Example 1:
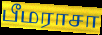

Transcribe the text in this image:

பீமராசா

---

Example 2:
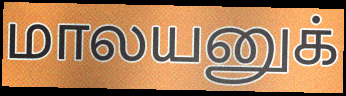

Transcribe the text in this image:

மாலயனுக்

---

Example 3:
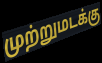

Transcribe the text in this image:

முற்றுமடக்கு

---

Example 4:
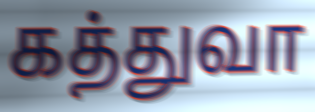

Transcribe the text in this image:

கத்துவா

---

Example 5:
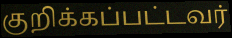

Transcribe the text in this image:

குறிக்கப்பட்டவர்